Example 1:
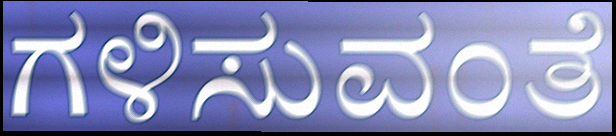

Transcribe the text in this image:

ಗಳಿಸುವಂತೆ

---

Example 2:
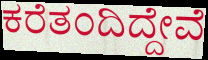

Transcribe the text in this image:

ಕರೆತಂದಿದ್ದೇವೆ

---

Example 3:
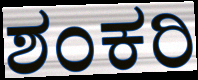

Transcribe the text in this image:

ಶಂಕರಿ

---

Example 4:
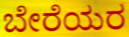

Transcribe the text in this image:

ಬೇರೆಯರ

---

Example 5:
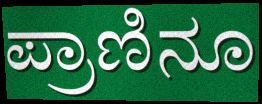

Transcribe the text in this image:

ಪ್ರಾಣಿನೂ